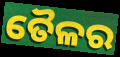
ତୈଳର